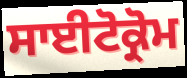
ਸਾਈਟੋਕ੍ਰੋਮ